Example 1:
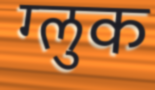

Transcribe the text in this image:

ग्लुक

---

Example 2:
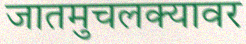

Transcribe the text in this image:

जातमुचलक्यावर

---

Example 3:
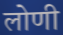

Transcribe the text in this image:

लोणी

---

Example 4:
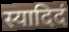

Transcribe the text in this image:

स्यादिदं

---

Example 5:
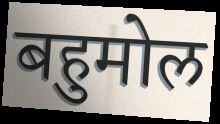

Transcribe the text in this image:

बहुमोल